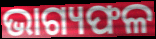
ଭାଗ୍ୟଫଳ